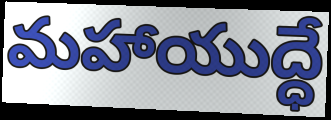
మహాయుద్ధే